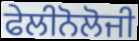
ਫੇਲੀਨੋਲੋਜੀ